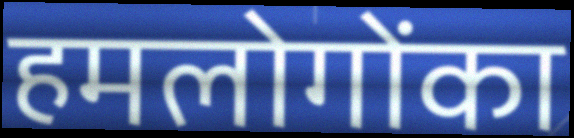
हमलोगोंका